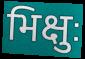
भिक्षुः